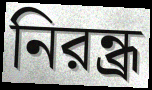
নিরন্ধ্র